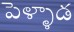
పెళ్ళాడ